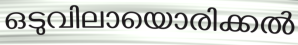
ഒടുവിലായൊരിക്കൽ